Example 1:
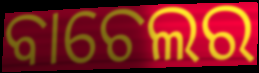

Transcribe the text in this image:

ବାଚେଲର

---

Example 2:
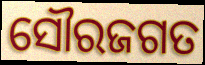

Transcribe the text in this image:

ସୌରଜଗତ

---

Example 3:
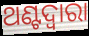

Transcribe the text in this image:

ଥଣ୍ଟଦ୍ୱାରା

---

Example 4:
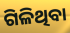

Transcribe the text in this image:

ଗିଳିଥିବା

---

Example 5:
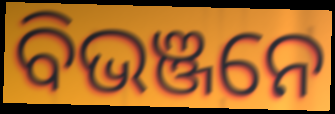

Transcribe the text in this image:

ବିଭଞ୍ଜନେ